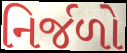
નિર્જળો